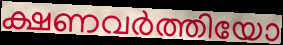
ക്ഷണവർത്തിയോ